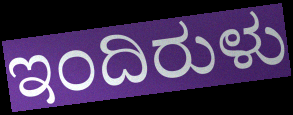
ಇಂದಿರುಳು